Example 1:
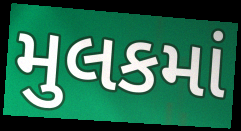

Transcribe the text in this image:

મુલકમાં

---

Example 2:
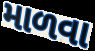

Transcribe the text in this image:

માળવા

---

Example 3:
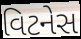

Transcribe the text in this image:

વિટનેસ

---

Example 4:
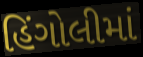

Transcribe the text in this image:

હિંગોલીમાં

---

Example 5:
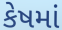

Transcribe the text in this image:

કેષમાં